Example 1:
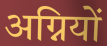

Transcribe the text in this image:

अग्नियों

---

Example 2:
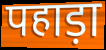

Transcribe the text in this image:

पहाड़ा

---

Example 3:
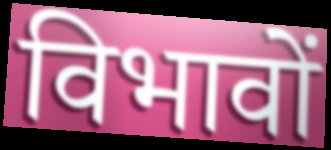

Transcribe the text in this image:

विभावों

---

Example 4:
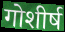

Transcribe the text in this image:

गोशीर्ष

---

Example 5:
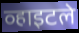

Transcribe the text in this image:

व्हाइटले